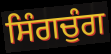
ਸਿੰਗਚੁੰਗ